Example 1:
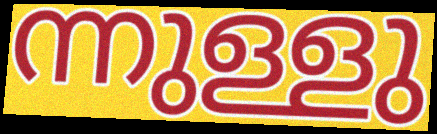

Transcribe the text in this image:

ന്നുള്ളു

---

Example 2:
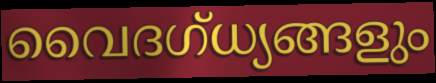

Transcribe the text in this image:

വൈദഗ്ധ്യങ്ങളും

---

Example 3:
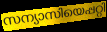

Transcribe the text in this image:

സന്യാസിയെപ്പറ്റി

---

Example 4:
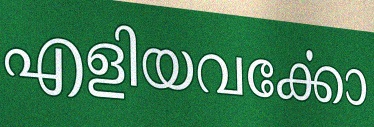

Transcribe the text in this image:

എളിയവൎക്കോ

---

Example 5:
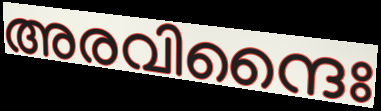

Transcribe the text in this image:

അരവിന്ദൈഃ